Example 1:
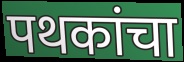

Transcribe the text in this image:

पथकांचा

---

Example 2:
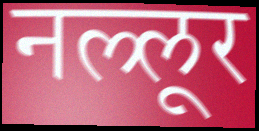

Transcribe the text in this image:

नल्लूर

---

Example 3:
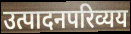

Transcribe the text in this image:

उत्पादनपरिव्यय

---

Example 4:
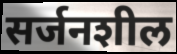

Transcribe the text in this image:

सर्जनशील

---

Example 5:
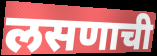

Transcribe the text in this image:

लसणाची